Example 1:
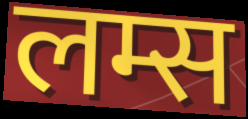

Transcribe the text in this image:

लम्स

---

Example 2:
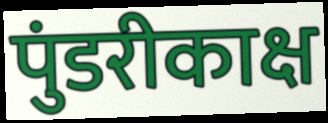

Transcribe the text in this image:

पुंडरीकाक्ष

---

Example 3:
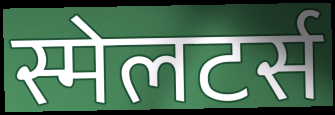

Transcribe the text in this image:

स्मेलटर्स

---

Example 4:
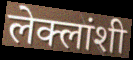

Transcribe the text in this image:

लेक्लांशी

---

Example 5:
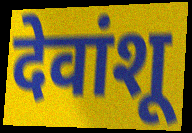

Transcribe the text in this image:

देवांशू